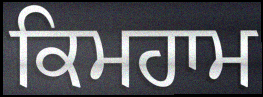
ਕਿਮਹਾਮ